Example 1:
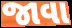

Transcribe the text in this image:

જાવા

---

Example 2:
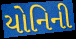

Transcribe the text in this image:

યોનિની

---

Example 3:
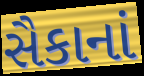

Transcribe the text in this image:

સૈકાનાં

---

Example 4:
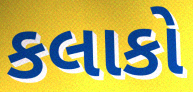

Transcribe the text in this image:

કલાકો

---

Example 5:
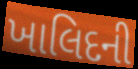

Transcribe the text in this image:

ખાલિદની